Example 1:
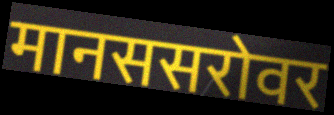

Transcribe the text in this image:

मानससरोवर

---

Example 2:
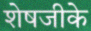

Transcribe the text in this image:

शेषजीके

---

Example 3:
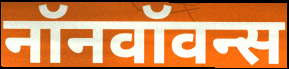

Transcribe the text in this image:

नॉनवॉवन्स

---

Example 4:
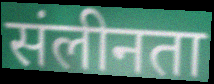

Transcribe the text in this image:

संलीनता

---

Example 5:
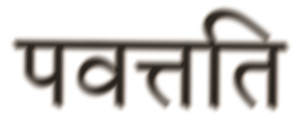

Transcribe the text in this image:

पवत्तति